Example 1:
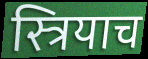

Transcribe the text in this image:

स्त्रियाच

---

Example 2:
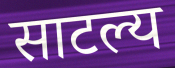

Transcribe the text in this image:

साटल्य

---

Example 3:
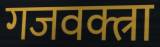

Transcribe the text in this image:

गजवक्त्रा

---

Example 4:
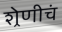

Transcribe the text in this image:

श्रेणीचं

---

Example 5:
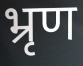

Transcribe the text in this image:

भ्रृण